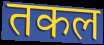
तकल